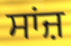
ਸਾਂਜ਼